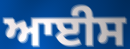
ਆਈਸ